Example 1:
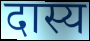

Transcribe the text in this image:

दास्य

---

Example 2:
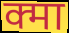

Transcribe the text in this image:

क्मा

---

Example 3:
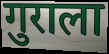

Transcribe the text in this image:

गुराला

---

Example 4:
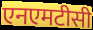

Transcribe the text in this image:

एनएमटीसी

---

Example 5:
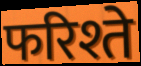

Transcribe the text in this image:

फरिश्ते